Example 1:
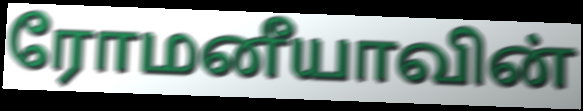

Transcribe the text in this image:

ரோமனீயாவின்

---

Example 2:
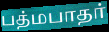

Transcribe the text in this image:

பத்மபாதர்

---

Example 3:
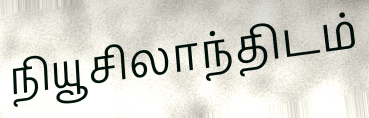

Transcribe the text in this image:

நியூசிலாந்திடம்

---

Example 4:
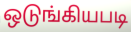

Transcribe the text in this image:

ஒடுங்கியபடி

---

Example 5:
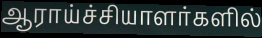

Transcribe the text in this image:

ஆராய்ச்சியாளர்களில்